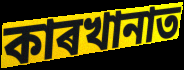
কাৰখানাত